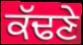
ਕੱਢਣੇ